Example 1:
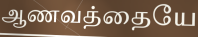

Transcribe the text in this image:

ஆணவத்தையே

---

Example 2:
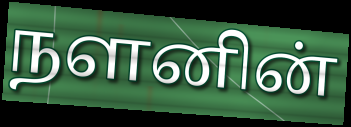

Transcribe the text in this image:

நளனின்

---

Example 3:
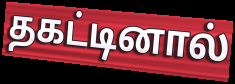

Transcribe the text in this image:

தகட்டினால்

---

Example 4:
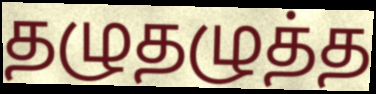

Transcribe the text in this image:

தழுதழுத்த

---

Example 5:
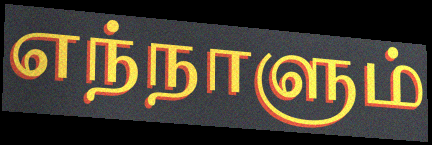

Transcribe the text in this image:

எந்நாளும்